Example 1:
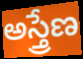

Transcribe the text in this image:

అస్త్రేణ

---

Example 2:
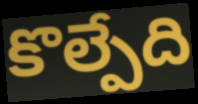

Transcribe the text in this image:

కొల్పేది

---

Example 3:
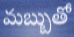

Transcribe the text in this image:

మబ్బుతో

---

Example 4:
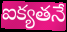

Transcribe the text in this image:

ఐక్యతనే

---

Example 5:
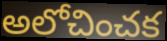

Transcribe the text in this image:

అలోచించక